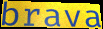
brava